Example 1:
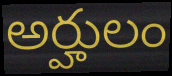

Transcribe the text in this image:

అర్హులం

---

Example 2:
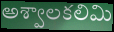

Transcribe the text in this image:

అశ్వాలకలిమి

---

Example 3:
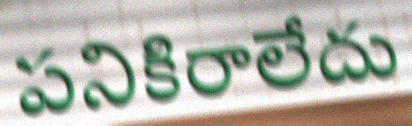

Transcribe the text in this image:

పనికిరాలేదు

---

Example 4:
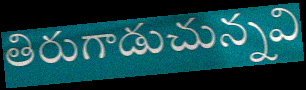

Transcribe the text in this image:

తిరుగాడుచున్నవి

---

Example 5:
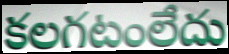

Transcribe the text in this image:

కలగటంలేదు